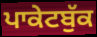
ਪਾਕੇਟਬੁੱਕ